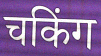
चकिंग